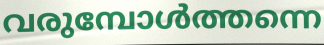
വരുമ്പോൾത്തന്നെ